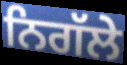
ਨਿਗੱਲੇ